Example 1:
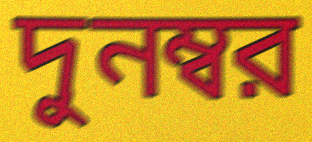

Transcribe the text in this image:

দুনম্বর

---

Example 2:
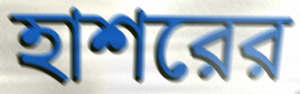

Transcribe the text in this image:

হাশরের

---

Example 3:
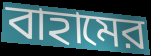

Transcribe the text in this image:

বাহামের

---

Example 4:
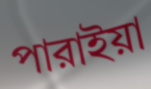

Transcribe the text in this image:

পারাইয়া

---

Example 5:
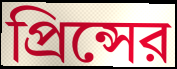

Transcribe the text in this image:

প্রিন্সের